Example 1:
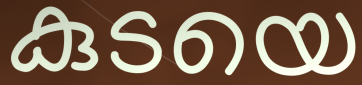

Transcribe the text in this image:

കുടയെ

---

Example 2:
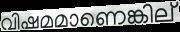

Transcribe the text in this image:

വിഷമമാണെങ്കില്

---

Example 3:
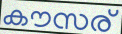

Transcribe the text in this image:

കൗസര്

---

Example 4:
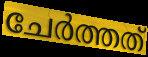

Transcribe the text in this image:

ചേർത്തത്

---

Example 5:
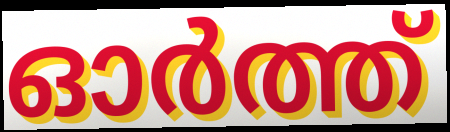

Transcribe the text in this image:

ഓർത്ത്